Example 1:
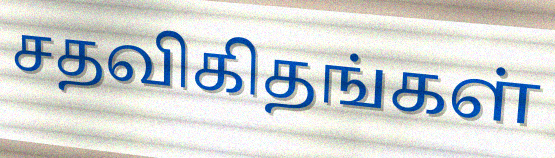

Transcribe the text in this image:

சதவிகிதங்கள்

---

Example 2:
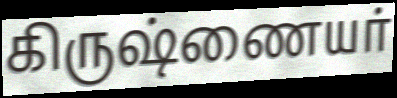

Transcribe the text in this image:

கிருஷ்ணையர்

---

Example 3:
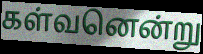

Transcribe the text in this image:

கள்வனென்று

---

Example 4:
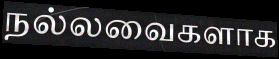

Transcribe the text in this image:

நல்லவைகளாக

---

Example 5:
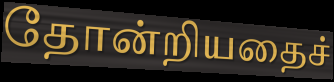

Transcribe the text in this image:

தோன்றியதைச்